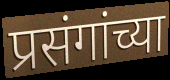
प्रसंगांच्या